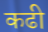
कढी